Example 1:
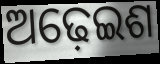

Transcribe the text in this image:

ଅଢ଼େଇଶ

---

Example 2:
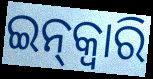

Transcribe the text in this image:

ଇନ୍‌କ୍ଵାରି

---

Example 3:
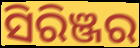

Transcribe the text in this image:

ସିରିଞ୍ଜର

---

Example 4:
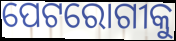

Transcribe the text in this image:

ପେଟରୋଗୀକୁ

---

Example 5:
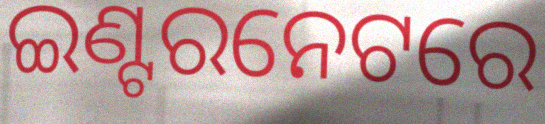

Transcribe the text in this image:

ଇଣ୍ଟରନେଟରେ